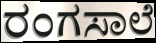
ರಂಗಸಾಲೆ